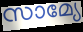
സാമ്യേ